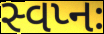
સ્વપ્નઃ